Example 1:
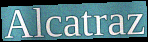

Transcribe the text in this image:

Alcatraz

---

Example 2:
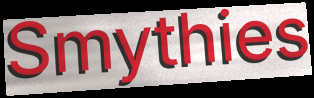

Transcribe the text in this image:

Smythies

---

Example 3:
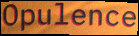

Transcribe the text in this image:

Opulence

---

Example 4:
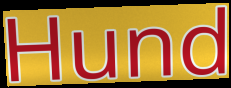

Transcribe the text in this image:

Hund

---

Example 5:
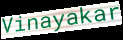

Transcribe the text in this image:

Vinayakar